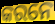
କରନେ